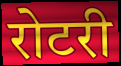
रोटरी